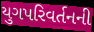
યુગપરિવર્તનની